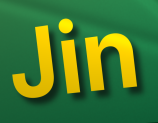
Jin